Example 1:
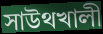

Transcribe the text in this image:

সাউথখালী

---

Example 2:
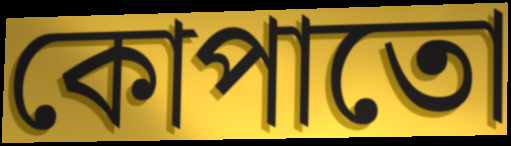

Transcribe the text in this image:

কোপাতো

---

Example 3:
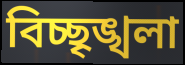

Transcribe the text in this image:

বিচ্ছৃঙ্খলা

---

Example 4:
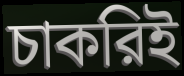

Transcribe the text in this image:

চাকরিই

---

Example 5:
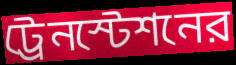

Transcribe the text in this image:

ট্রেনস্টেশনের